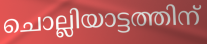
ചൊല്ലിയാട്ടത്തിന്